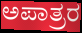
ಅಪಾತ್ರರ